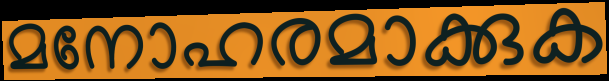
മനോഹരമാക്കുക